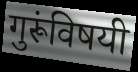
गुरूंविषयी